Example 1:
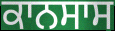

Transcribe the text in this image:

ਕਾਨਸਾਸ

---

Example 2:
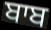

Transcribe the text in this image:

ਬਾਬ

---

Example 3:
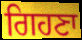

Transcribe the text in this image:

ਗਿਹਣਾ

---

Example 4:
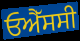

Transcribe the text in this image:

ਓਐੱਸਸੀ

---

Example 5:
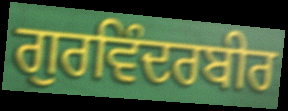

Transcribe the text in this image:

ਗੁਰਵਿੰਦਰਬੀਰ